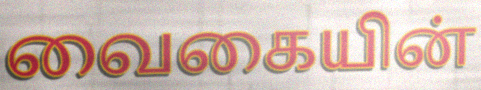
வைகையின்